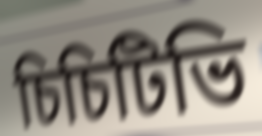
চিচিটিভি